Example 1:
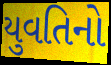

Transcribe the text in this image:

યુવતિનો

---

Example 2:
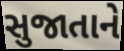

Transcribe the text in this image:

સુજાતાને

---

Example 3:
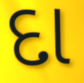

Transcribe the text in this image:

દા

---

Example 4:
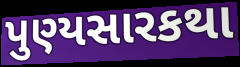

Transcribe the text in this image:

પુણ્યસારકથા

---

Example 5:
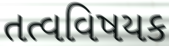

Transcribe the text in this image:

તત્વવિષયક